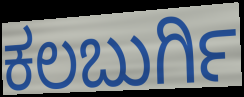
ಕಲಬುರ್ಗಿ